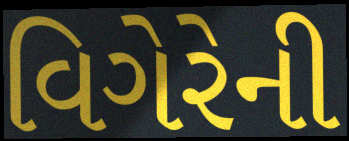
વિગેરેની